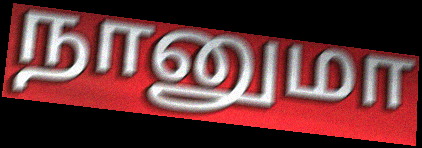
நானுமா